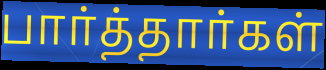
பார்த்தார்கள்